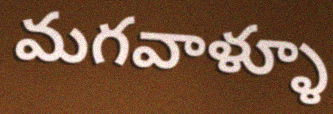
మగవాళ్ళూ